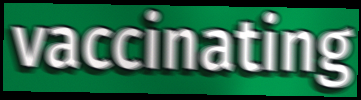
vaccinating